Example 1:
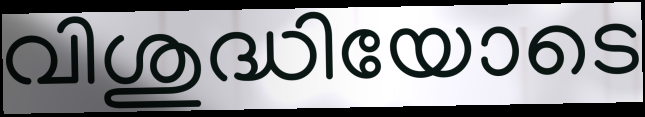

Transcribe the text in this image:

വിശുദ്ധിയോടെ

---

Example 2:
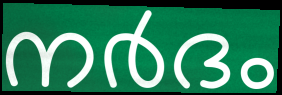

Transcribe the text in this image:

നർദം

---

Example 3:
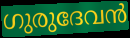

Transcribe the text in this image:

ഗുരുദേവൻ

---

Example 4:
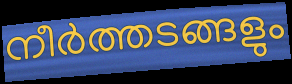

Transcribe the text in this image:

നീർത്തടങ്ങളും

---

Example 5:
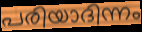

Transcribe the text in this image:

പരിയാദിന്നം